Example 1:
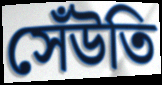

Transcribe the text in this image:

সেঁউতি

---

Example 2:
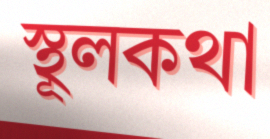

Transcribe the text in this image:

স্থূলকথা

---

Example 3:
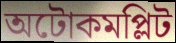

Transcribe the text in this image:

অটোকমপ্লিট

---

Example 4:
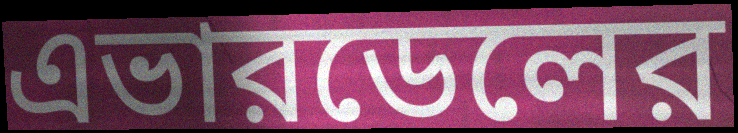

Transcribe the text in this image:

এভারডেলের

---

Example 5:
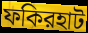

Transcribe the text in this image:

ফকিরহাট